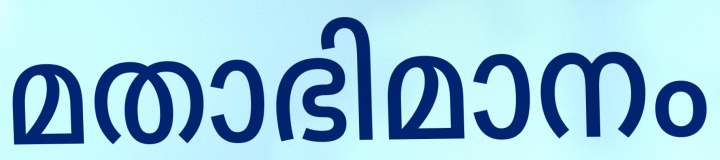
മതാഭിമാനം